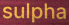
sulpha